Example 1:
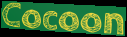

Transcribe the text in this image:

Cocoon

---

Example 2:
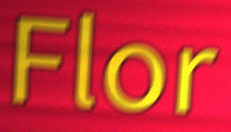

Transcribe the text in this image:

Flor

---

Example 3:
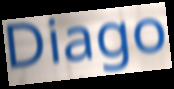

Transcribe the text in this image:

Diago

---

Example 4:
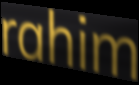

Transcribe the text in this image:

rahim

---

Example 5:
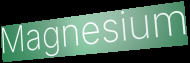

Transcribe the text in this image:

Magnesium